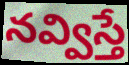
నవ్విస్తే